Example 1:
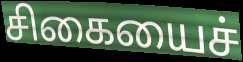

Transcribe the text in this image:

சிகையைச்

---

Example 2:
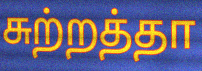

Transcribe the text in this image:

சுற்றத்தா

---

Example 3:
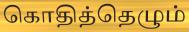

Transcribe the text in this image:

கொதித்தெழும்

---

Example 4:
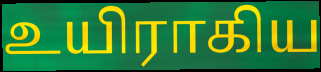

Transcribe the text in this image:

உயிராகிய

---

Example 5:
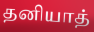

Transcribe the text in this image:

தனியாத்